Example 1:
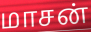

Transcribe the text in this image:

மாசன்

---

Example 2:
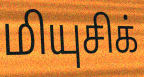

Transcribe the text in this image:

மியுசிக்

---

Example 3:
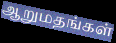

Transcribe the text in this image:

ஆறுமதங்கள்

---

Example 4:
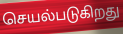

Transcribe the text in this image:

செயல்படுகிறது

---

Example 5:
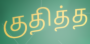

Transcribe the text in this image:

குதித்த